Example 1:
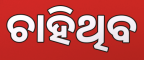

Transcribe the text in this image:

ଚାହିଥିବ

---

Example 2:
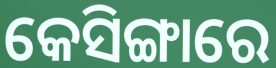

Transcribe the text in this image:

କେସିଙ୍ଗାରେ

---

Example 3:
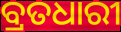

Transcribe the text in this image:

ବ୍ରତଧାରୀ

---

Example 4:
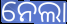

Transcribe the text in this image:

ନେଲା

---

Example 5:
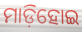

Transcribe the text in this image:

ମାଡ଼ିହୋଇ